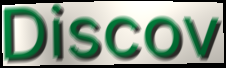
Discov